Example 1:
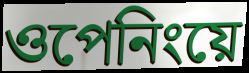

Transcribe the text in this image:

ওপেনিংয়ে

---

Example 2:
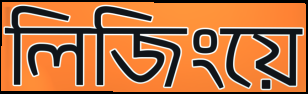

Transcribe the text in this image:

লিজিংয়ে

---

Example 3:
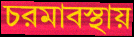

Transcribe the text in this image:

চরমাবস্থায়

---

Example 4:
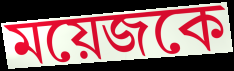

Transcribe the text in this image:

ময়েজকে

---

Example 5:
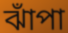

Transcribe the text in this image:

ঝাঁপা